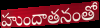
హుందాతనంతో